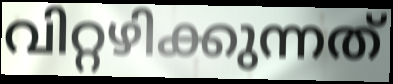
വിറ്റഴിക്കുന്നത്